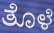
ತೊಳೆ